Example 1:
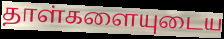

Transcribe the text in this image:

தாள்களையுடைய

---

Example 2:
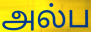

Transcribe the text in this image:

அல்ப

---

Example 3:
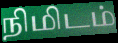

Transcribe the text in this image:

நிமிடம்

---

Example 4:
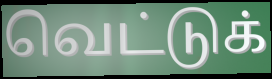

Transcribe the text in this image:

வெட்டுக்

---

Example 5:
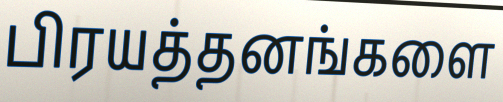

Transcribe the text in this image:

பிரயத்தனங்களை